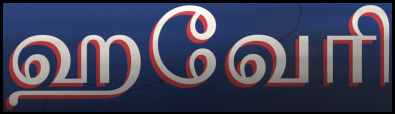
ஹவேரி